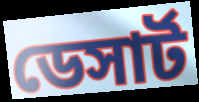
ডেসার্ট